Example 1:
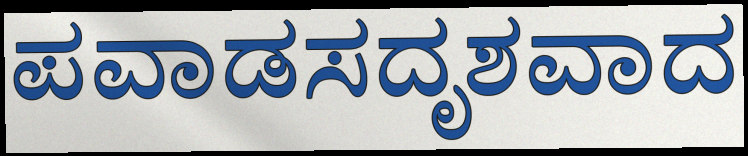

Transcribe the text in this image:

ಪವಾಡಸದೃಶವಾದ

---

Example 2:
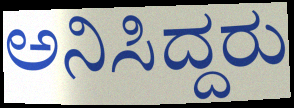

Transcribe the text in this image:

ಅನಿಸಿದ್ದರು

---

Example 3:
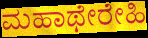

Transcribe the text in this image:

ಮಹಾಥೇರೇಹಿ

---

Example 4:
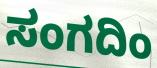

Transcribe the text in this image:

ಸಂಗದಿಂ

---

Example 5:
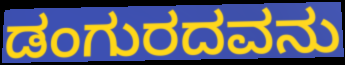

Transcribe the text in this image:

ಡಂಗುರದವನು